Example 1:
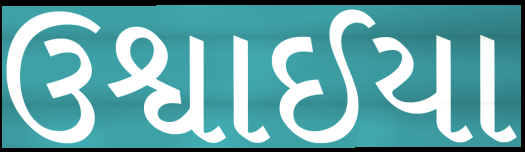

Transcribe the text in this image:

ઉશ્વાઈયા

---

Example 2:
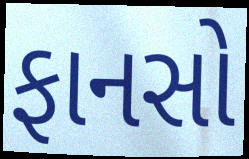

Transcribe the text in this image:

ફાનસો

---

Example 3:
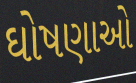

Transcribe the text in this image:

ઘોષણાઓ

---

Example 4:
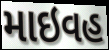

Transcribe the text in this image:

માઇવહ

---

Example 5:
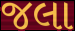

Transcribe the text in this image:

જલા